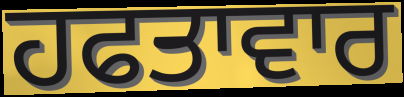
ਹਫਤਾਵਾਰ